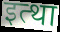
इत्था